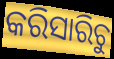
କରିସାରିଚୁ